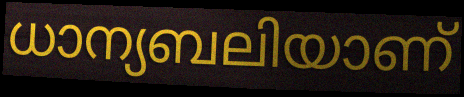
ധാന്യബലിയാണ്